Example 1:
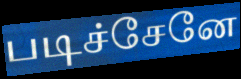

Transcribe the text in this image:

படிச்சேனே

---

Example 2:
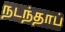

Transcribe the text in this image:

நடந்தாப்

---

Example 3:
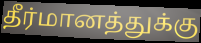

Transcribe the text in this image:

தீர்மானத்துக்கு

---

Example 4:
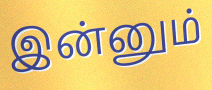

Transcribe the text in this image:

இன்னும்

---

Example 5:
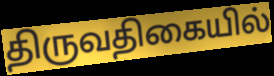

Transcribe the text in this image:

திருவதிகையில்